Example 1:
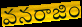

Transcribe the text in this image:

వనరాజిం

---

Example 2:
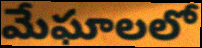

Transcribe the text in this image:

మేఘాలలో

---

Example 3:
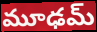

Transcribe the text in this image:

మూఢమ్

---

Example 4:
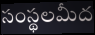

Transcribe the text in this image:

సంస్థలమీద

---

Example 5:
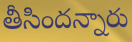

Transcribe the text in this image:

తీసిందన్నారు